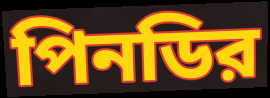
পিনডির